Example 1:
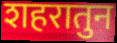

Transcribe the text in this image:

शहरातुन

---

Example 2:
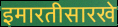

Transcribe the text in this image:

इमारतीसारखे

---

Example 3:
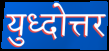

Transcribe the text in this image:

युध्दोत्तर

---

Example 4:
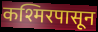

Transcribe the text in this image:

कश्मिरपासून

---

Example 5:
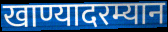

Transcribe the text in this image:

खाण्यादरम्यान